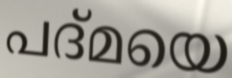
പദ്മയെ